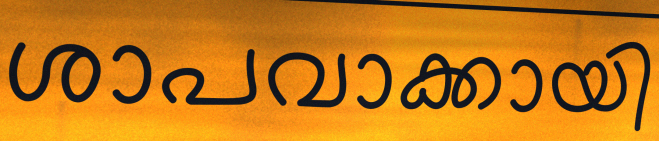
ശാപവാക്കായി